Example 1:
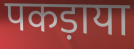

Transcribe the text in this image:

पकड़ाया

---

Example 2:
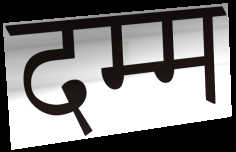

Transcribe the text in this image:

दम्म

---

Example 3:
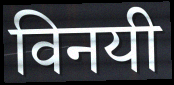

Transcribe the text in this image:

विनयी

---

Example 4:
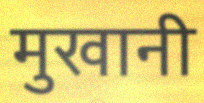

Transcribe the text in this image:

मुखानी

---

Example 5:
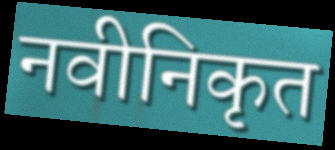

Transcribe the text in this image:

नवीनिकृत